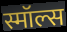
स्मॉल्स